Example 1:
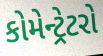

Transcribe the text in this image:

કોમેન્ટ્રેટરો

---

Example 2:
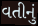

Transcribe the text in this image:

વતીનું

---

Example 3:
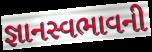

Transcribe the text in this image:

જ્ઞાનસ્વભાવની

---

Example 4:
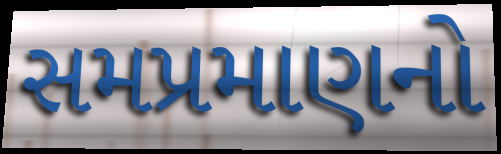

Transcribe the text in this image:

સમપ્રમાણનો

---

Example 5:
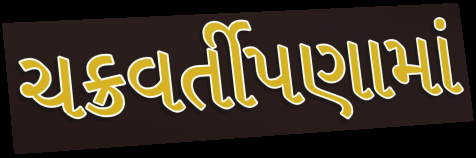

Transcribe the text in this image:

ચક્રવર્તીપણામાં